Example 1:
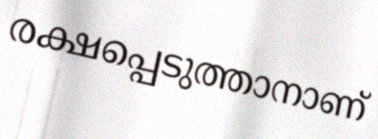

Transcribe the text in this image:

രക്ഷപ്പെടുത്താനാണ്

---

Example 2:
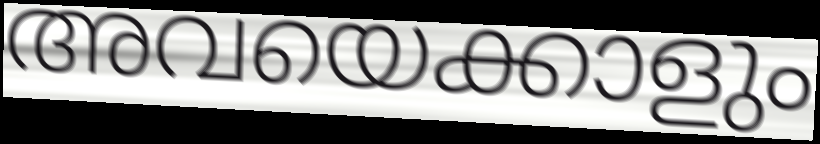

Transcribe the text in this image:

അവയെക്കാളും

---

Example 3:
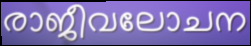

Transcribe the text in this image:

രാജീവലോചന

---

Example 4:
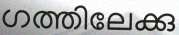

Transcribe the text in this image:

ഗത്തിലേക്കു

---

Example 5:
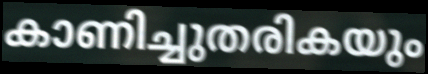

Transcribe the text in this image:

കാണിച്ചുതരികയും